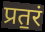
प्रत॒रं